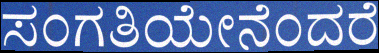
ಸಂಗತಿಯೇನೆಂದರೆ